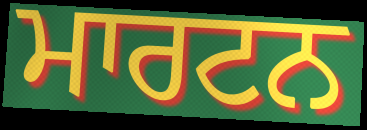
ਮਾਰਟਨ